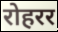
रोहरर